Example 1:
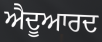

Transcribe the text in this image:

ਐਦੂਆਰਦ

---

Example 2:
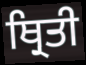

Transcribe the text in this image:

ਥ੍ਰਿਤੀ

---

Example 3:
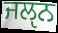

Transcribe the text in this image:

ਜਲੵਨ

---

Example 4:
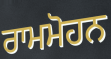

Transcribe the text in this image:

ਰਾਮਮੋਹਨ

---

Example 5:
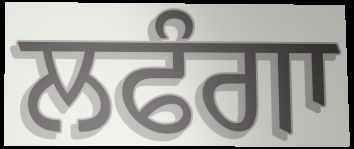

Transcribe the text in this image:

ਲਫੰਗਾ